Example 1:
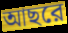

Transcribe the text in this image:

আছরে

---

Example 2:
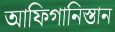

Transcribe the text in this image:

আফিগানিস্তান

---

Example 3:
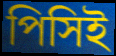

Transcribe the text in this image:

পিসিই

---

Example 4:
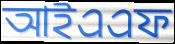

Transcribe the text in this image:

আইএএফ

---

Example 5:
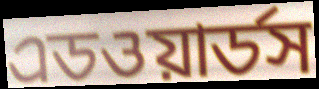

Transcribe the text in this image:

এডওয়ার্ডস